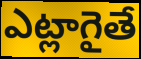
ఎట్లాగైతే